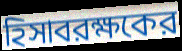
হিসাবরক্ষকের